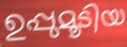
ഉപ്പുമൂടിയ